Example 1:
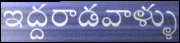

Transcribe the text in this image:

ఇద్దరాడవాళ్ళు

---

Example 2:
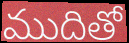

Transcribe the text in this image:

ముదితో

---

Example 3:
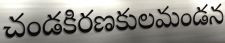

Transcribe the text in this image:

చండకిరణకులమండన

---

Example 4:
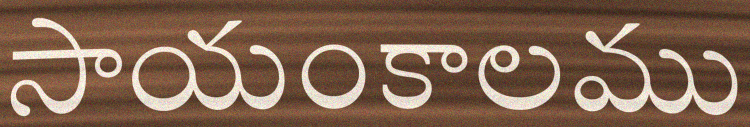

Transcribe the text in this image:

సాయంకాలము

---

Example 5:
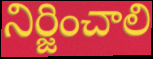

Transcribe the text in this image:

నిర్జించాలి